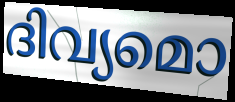
ദിവ്യമൊ